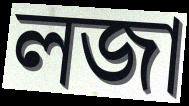
লজা